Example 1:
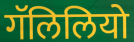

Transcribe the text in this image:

गॅलिलियो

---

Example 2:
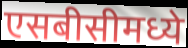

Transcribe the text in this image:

एसबीसीमध्ये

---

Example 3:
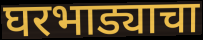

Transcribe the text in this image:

घरभाड्याचा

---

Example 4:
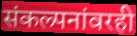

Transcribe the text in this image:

संकल्पनांवरही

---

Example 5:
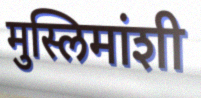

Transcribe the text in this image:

मुस्लिमांशी